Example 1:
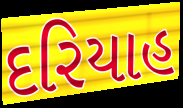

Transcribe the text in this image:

દરિયાહ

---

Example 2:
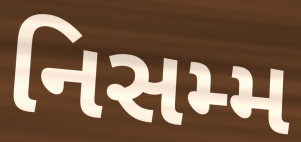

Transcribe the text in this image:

નિસમ્મ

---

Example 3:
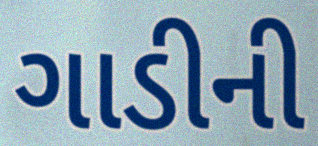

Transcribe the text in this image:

ગાડીની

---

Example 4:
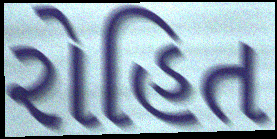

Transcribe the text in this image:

રોહિત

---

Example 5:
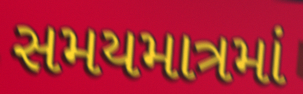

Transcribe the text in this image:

સમયમાત્રમાં